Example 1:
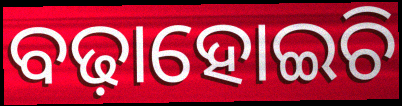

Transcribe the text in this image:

ବଢ଼ାହୋଇଚି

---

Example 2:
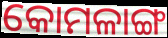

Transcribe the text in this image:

କୋମଳାଙ୍ଗ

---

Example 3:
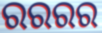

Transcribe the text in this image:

ରରରର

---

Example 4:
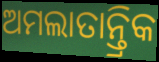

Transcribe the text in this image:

ଅମଲାତାନ୍ତ୍ରିକ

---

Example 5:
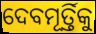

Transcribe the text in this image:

ଦେବମୂର୍ତ୍ତିକୁ